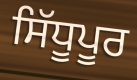
ਸਿੱਧੂਪੂਰ